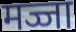
मज्जा